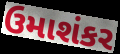
ઉમાશંકર